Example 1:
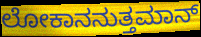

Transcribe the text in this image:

ಲೋಕಾನನುತ್ತಮಾನ್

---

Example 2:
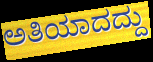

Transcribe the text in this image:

ಅತಿಯಾದದ್ದು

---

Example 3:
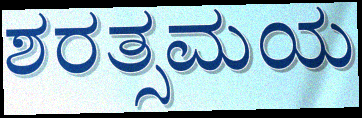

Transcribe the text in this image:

ಶರತ್ಸಮಯ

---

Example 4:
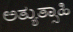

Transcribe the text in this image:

ಅತ್ಯುತ್ಸಾಹಿ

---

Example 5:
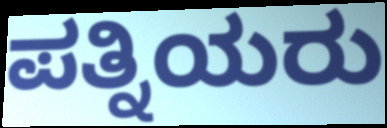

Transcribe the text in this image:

ಪತ್ನಿಯರು